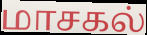
மாசகல்